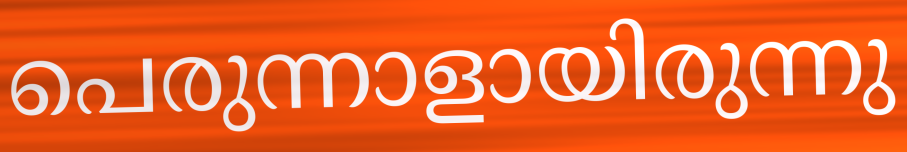
പെരുന്നാളായിരുന്നു